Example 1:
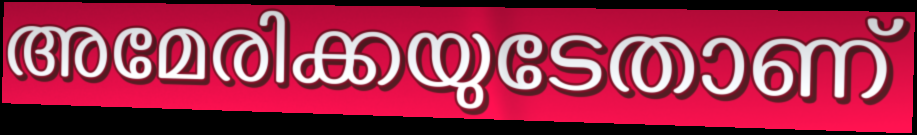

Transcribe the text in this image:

അമേരിക്കയുടേതാണ്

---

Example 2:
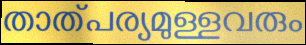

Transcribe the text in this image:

താത്പര്യമുള്ളവരും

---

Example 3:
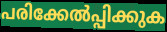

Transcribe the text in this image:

പരിക്കേൽപ്പിക്കുക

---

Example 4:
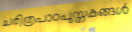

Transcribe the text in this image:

ചരിത്രപാഠപുസ്തകങ്ങൾ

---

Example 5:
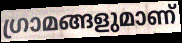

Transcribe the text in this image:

ഗ്രാമങ്ങളുമാണ്